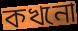
কখনো